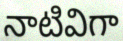
నాటివిగా